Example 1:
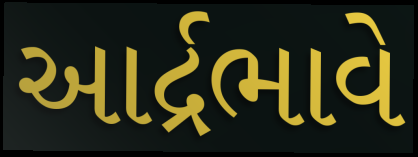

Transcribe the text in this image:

આર્દ્રભાવે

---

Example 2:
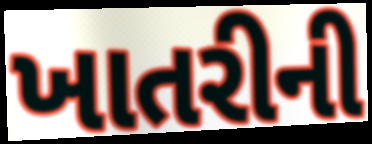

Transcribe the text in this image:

ખાતરીની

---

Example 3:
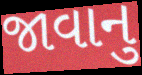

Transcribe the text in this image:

જાવાનુ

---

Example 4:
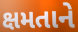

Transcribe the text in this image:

ક્ષમતાને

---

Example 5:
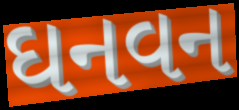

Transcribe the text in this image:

ઘનવન